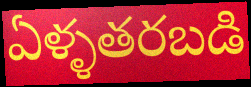
ఏళ్ళతరబడి